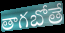
తాగబోతే